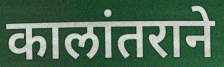
कालांतराने